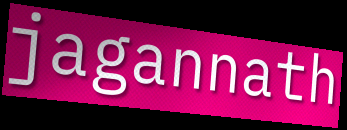
jagannath